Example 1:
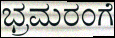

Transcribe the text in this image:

ಭ್ರಮರಂಗೆ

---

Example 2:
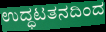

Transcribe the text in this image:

ಉದ್ಧಟತನದಿಂದ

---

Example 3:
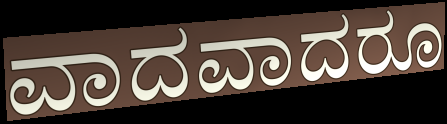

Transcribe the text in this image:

ವಾದವಾದರೂ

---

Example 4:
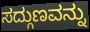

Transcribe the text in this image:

ಸದ್ಗುಣವನ್ನು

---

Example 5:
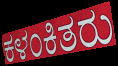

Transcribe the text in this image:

ಕಳಂಕಿತರು